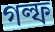
গল্ফ